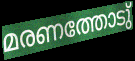
മരണത്തോടു്